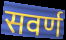
सवर्ण